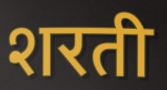
शरती